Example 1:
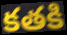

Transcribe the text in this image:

కతకి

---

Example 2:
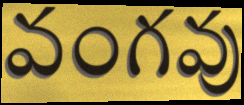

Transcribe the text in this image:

వంగవు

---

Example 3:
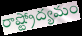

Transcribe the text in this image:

రాష్ట్రోద్యమం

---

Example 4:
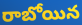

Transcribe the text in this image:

రాబోయిన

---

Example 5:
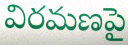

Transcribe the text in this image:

విరమణపై